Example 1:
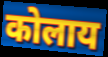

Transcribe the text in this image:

कोलाय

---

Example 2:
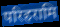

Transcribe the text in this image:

परिहरामि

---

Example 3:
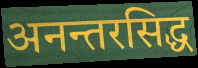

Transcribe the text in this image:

अनन्तरसिद्ध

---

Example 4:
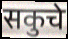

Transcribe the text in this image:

सकुचे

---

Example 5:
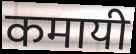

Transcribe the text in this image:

कमायी